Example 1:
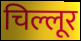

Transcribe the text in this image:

चिल्लूर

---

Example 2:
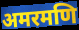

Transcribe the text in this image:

अमरमणि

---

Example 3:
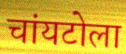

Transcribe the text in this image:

चांयटोला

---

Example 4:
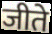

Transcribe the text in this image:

जीते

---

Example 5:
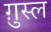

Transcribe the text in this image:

ग़ुस्ल